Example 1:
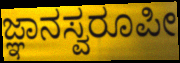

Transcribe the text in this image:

ಜ್ಞಾನಸ್ವರೂಪೀ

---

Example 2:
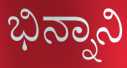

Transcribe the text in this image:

ಭಿನ್ನಾನಿ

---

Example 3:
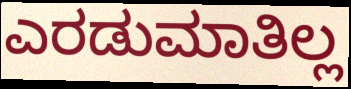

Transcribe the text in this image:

ಎರಡುಮಾತಿಲ್ಲ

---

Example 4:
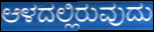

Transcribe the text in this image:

ಆಳದಲ್ಲಿರುವುದು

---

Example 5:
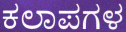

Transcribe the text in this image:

ಕಲಾಪಗಳ